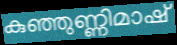
കുഞ്ഞുണ്ണിമാഷ്